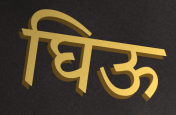
घिऊ